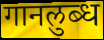
गानलुब्ध